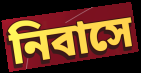
নিবাসে